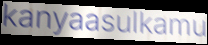
kanyaasulkamu